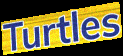
Turtles